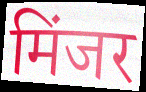
मिंजर